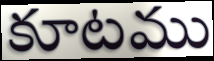
కూటము